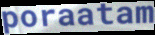
poraatam